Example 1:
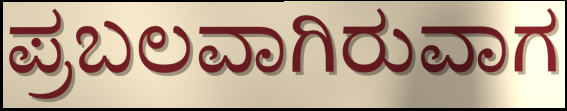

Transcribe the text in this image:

ಪ್ರಬಲವಾಗಿರುವಾಗ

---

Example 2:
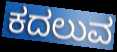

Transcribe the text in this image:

ಕದಲುವ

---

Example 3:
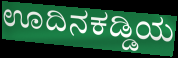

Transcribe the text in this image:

ಊದಿನಕಡ್ಡಿಯ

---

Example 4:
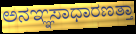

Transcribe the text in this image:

ಅನಞ್ಞಸಾಧಾರಣತ್ತಾ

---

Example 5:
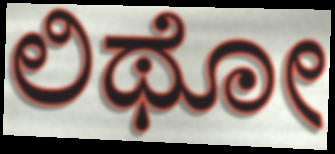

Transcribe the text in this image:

ಲಿಥೋ